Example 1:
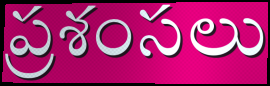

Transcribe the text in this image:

ప్రశంసలు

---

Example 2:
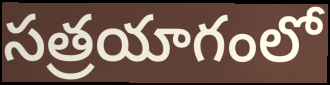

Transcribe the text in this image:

సత్రయాగంలో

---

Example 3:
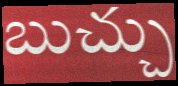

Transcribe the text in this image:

బుచ్చు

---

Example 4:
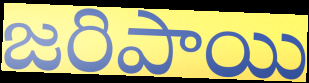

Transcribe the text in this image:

జరిపాయి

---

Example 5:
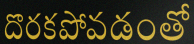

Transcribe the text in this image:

దొరకపోవడంతో